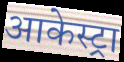
आकेस्ट्रा